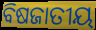
ବିଷଜାତୀୟ